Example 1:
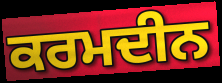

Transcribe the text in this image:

ਕਰਮਦੀਨ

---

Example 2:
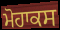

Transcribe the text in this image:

ਮੋਹਾਕਸ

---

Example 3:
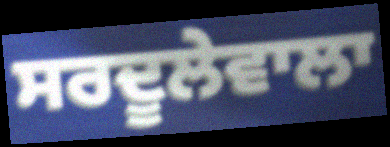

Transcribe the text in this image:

ਸਰਦੂਲੇਵਾਲਾ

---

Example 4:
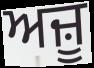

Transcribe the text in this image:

ਅਜ਼ੂ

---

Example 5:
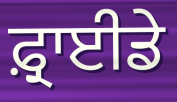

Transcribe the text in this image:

ਫ਼੍ਰਾਈਡੇ